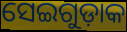
ସେଇଗୁଡ଼ାକ